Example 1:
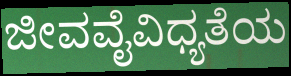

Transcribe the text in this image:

ಜೀವವೈವಿಧ್ಯತೆಯ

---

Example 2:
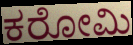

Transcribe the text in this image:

ಕರೋಮಿ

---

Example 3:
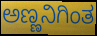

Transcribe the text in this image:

ಅಣ್ಣನಿಗಿಂತ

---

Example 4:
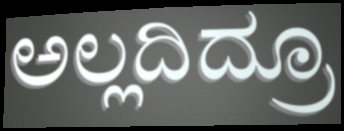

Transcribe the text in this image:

ಅಲ್ಲದಿದ್ರೂ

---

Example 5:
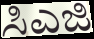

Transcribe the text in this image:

ಸಿಎಜಿ